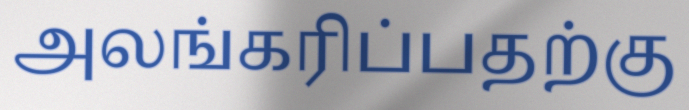
அலங்கரிப்பதற்கு